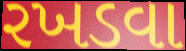
રખડવા